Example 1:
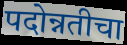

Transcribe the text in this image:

पदोन्नतीचा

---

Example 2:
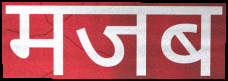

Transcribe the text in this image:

मजब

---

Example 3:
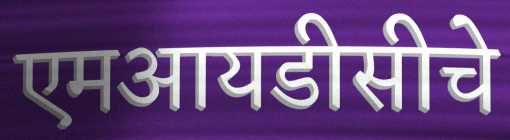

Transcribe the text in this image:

एमआयडीसीचे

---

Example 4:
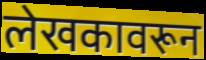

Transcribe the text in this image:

लेखकावरून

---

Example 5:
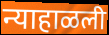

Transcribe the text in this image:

न्याहाळली